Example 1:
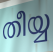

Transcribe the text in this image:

തീയ്യ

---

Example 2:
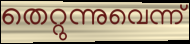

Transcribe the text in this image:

തെറ്റുന്നുവെന്ന്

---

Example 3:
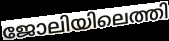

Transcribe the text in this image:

ജോലിയിലെത്തി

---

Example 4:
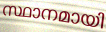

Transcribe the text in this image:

സ്ഥാനമായി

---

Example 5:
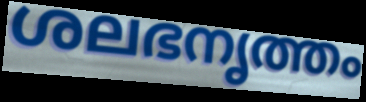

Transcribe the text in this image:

ശലഭനൃത്തം